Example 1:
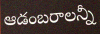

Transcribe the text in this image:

ఆడంబరాలన్నీ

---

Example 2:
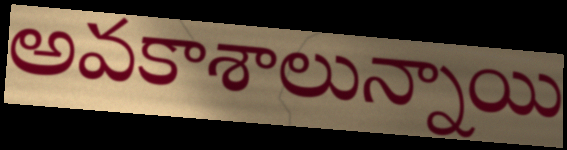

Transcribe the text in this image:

అవకాశాలున్నాయి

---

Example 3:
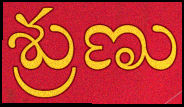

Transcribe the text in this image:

శ్రుణు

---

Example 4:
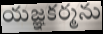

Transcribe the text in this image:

యజ్ఞకర్మను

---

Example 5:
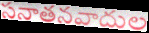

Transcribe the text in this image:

సనాతనవాదుల